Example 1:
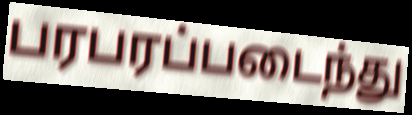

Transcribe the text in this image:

பரபரப்படைந்து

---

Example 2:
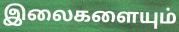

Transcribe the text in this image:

இலைகளையும்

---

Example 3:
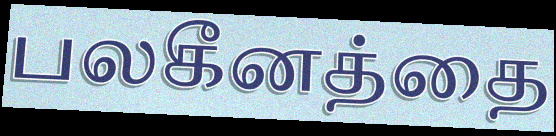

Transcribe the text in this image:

பலகீனத்தை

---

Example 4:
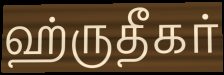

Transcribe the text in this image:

ஹ்ருதீகர்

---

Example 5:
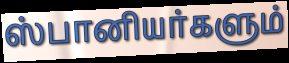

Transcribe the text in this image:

ஸ்பானியர்களும்